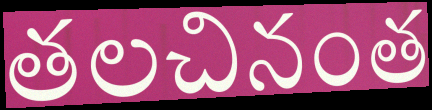
తలచినంత